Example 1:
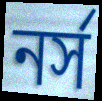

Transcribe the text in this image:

নর্স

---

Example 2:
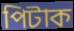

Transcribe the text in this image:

পিটাক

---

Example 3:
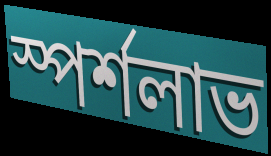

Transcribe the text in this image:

স্পর্শলাভ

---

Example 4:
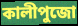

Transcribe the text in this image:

কালীপুজো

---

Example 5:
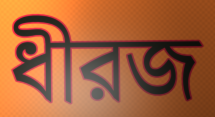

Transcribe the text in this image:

ধীরজ